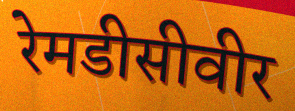
रेमडीसीवीर